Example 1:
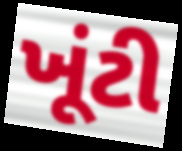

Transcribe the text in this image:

ખૂંટી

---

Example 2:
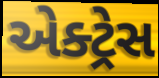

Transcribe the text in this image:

એક્ટ્રેસ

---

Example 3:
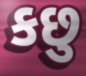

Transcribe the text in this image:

કછુ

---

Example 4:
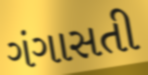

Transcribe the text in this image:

ગંગાસતી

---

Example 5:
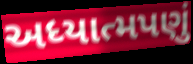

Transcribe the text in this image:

અધ્યાત્મપણું